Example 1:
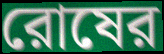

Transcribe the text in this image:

রোষের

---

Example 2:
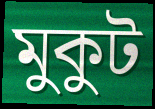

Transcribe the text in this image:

মুকুট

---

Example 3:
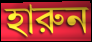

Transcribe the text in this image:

হারুন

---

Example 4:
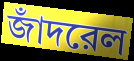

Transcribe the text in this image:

জাঁদরেল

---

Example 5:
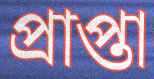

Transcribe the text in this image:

প্রাপ্তা